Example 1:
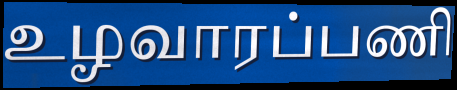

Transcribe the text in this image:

உழவாரப்பணி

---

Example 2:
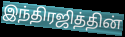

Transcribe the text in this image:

இந்திரஜித்தின்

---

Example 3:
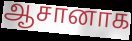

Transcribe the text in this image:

ஆசானாக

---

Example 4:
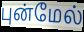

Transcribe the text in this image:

புன்மேல்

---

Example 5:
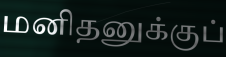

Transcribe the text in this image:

மனிதனுக்குப்